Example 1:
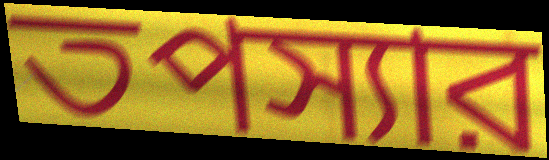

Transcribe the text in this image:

তপস্যার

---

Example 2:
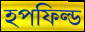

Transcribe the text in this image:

হপফিল্ড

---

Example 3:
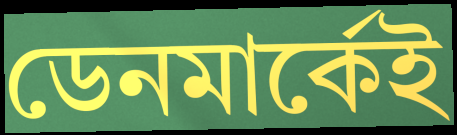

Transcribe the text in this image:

ডেনমার্কেই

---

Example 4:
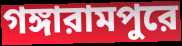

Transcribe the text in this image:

গঙ্গারামপুরে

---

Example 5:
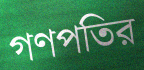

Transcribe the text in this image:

গণপতির